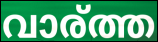
വാര്ത്ത